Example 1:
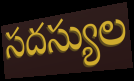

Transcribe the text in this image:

సదస్యుల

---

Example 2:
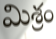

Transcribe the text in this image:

మిశ్రం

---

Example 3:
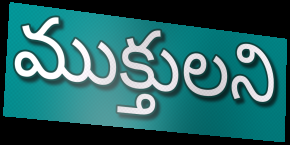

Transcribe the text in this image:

ముక్తులని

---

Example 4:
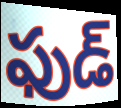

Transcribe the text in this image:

ఫుడ్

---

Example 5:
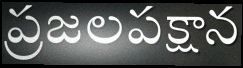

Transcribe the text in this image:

ప్రజలపక్షాన